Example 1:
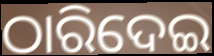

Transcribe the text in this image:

ଠାରିଦେଇ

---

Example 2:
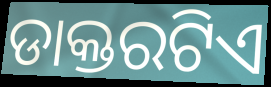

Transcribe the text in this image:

ଡାକ୍ତରଟିଏ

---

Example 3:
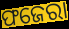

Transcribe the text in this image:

ଫଜେରା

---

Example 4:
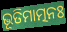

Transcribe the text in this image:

ଭୂତିମାତ୍ମନଃ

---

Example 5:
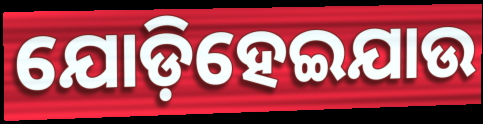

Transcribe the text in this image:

ଯୋଡ଼ିହେଇଯାଉ